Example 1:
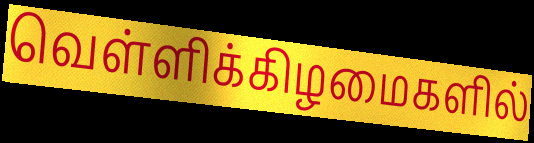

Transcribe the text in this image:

வெள்ளிக்கிழமைகளில்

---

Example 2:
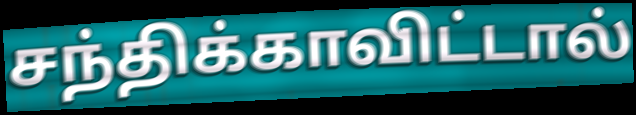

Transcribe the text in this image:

சந்திக்காவிட்டால்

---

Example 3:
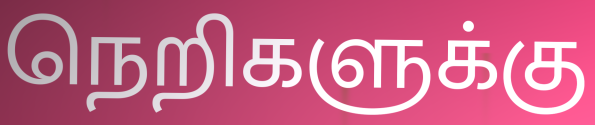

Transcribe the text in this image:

நெறிகளுக்கு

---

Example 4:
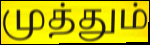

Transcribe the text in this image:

முத்தும்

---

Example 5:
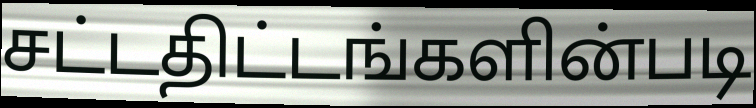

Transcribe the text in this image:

சட்டதிட்டங்களின்படி